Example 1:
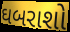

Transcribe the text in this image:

ઘબરાશો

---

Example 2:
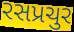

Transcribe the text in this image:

રસપ્રચુર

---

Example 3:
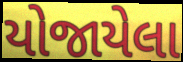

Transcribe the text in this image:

યોજાયેલા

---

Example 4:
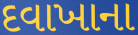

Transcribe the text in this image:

દવાખાના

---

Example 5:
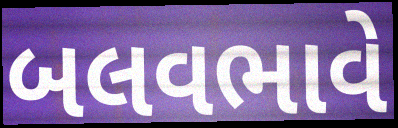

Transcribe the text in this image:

બલવભાવે